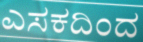
ಎಸಕದಿಂದ